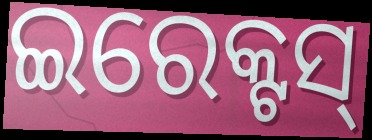
ଇରେକ୍ଟସ୍